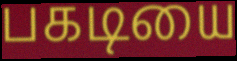
பகடியை